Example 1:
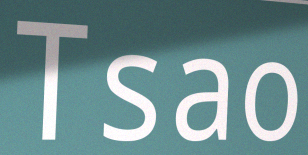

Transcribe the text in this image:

Tsao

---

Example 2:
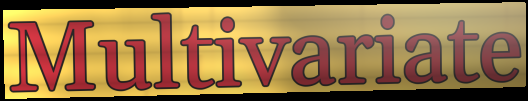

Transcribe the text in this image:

Multivariate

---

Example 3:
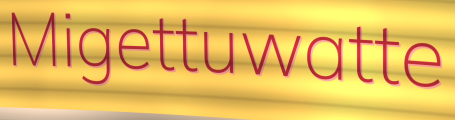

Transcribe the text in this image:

Migettuwatte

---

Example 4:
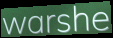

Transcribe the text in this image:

warshe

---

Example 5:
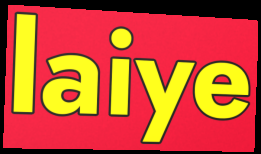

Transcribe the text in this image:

laiye